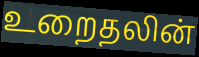
உறைதலின்